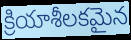
క్రియాశీలకమైన